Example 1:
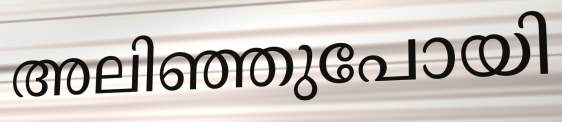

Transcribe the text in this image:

അലിഞ്ഞുപോയി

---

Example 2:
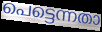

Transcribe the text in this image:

പെട്ടെന്നതാ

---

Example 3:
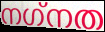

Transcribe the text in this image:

നഗ്‌നത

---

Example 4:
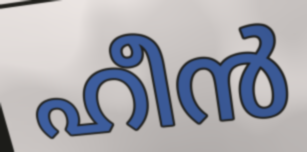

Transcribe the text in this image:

ഹീൻ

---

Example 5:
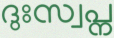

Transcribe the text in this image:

ദുഃസ്വപ്ന